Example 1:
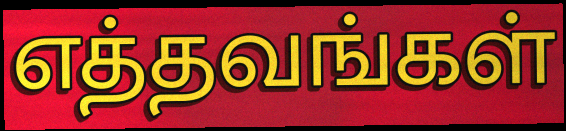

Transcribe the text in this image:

எத்தவங்கள்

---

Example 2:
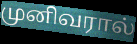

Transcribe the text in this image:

முனிவரால்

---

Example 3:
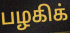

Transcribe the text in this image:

பழகிக்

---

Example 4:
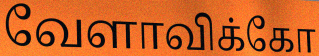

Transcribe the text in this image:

வேளாவிக்கோ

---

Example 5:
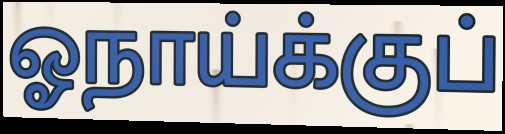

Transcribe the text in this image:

ஓநாய்க்குப்